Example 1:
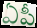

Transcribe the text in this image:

ఏపీ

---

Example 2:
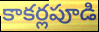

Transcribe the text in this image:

కాకర్లపూడి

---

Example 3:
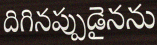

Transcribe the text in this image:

దిగినప్పుడైనను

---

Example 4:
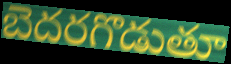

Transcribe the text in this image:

బెదరగొడుతూ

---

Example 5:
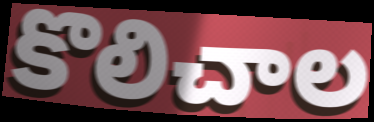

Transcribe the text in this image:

కొలిచాల